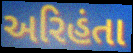
અરિહંતા